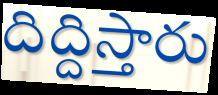
దిద్దిస్తారు